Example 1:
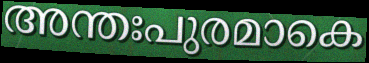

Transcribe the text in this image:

അന്തഃപുരമാകെ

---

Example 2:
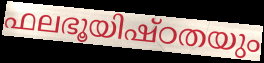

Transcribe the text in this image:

ഫലഭൂയിഷ്ഠതയും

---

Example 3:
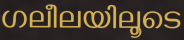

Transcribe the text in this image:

ഗലീലയിലൂടെ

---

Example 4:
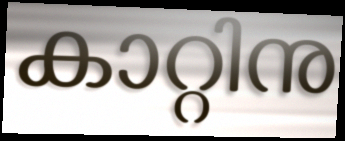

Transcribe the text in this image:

കാറ്റിനു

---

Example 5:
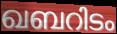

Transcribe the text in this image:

ഖബറിടം